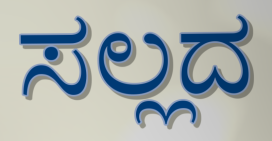
ಸಲ್ಲದ